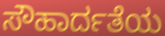
ಸೌಹಾರ್ದತೆಯ